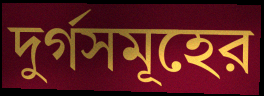
দুর্গসমূহের